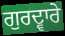
ਗੁਰਦ੍ਵਾਰੇ